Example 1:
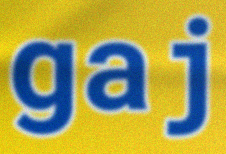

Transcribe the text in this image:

gaj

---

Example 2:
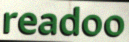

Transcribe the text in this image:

readoo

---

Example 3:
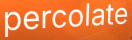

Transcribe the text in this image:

percolate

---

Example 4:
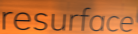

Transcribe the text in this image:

resurface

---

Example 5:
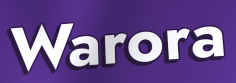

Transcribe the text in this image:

Warora